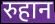
रुहान